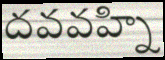
దవవహ్ని